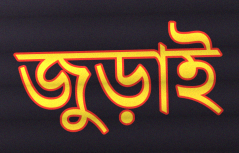
জুড়াই